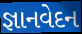
જ્ઞાનવેદન